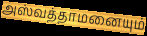
அஸ்வத்தாமனையும்